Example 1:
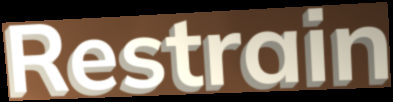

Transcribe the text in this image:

Restrain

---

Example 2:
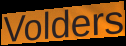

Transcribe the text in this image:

Volders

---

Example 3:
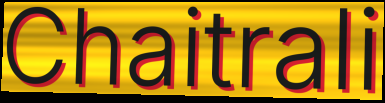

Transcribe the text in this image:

Chaitrali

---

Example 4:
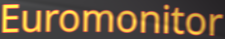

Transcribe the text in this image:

Euromonitor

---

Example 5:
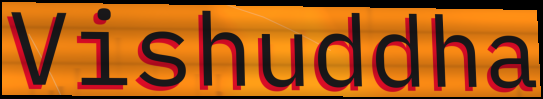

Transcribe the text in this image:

Vishuddha